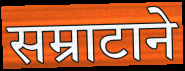
सम्राटाने